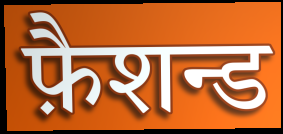
फ़ैशन्ड